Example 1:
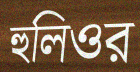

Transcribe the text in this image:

হুলিওর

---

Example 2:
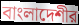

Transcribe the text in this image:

বাংলাদেশীর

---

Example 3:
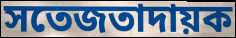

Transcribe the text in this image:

সতেজতাদায়ক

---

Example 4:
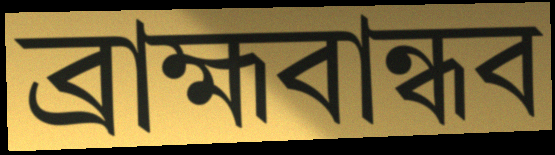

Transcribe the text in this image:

ব্রাহ্মবান্ধব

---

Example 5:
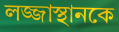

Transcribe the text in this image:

লজ্জাস্থানকে